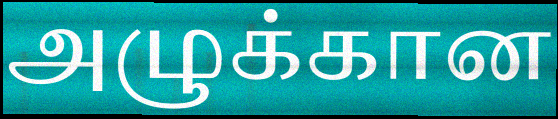
அழுக்கான